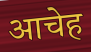
आचेह